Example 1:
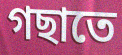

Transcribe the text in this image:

গছাতে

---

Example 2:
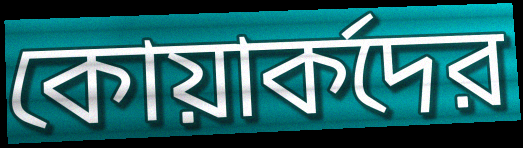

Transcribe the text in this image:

কোয়ার্কদের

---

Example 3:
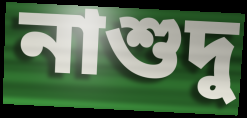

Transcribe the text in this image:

নাশুদু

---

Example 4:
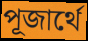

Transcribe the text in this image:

পূজার্থে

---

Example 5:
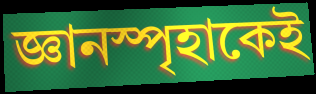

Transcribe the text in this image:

জ্ঞানস্পৃহাকেই